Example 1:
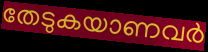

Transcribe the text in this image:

തേടുകയാണവർ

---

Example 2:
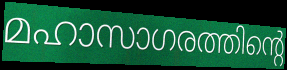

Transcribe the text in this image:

മഹാസാഗരത്തിന്റെ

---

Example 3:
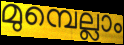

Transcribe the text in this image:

മുമ്പെല്ലാം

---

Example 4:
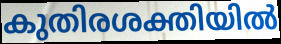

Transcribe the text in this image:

കുതിരശക്തിയിൽ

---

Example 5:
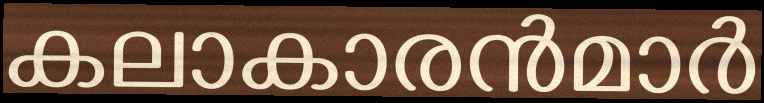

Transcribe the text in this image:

കലാകാരൻമാർ